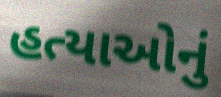
હત્યાઓનું